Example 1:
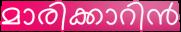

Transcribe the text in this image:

മാരിക്കാറിൻ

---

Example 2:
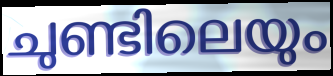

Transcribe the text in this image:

ചുണ്ടിലെയും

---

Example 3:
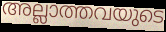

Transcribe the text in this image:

അല്ലാത്തവയുടെ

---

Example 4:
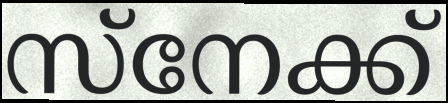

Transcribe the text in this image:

സ്നേക്ക്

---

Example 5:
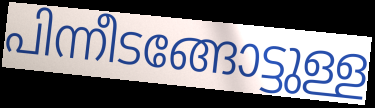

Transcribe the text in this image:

പിന്നീടങ്ങോട്ടുള്ള